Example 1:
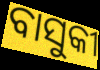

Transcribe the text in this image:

ବାସୁକୀ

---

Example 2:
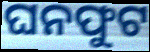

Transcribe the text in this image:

ଘନଫୁଟ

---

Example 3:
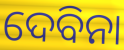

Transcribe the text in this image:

ଦେବିନା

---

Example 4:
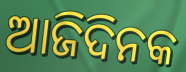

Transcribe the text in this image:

ଆଜିଦିନକ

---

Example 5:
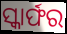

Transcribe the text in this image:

ସ୍କାର୍ଫର